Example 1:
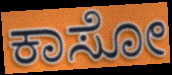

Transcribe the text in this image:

ಕಾಸೋ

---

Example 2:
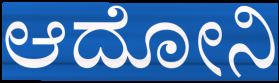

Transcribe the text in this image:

ಆದೋನಿ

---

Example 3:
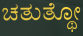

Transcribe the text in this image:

ಚತುತ್ಥೋ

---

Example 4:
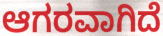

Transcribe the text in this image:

ಆಗರವಾಗಿದೆ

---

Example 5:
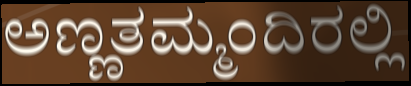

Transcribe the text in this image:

ಅಣ್ಣತಮ್ಮಂದಿರಲ್ಲಿ